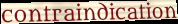
contraindication